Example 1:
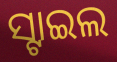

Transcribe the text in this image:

ସ୍ଟାଇଲ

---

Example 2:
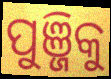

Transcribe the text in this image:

ପୁଞ୍ଜିକୁ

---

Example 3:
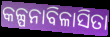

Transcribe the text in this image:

କଳ୍ପନାବିଳାସିତା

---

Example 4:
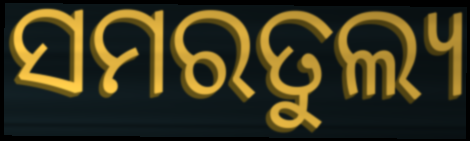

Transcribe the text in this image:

ସମରତୁଲ୍ୟ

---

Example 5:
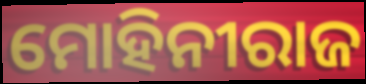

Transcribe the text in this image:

ମୋହିନୀରାଜ